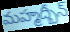
మహ్మద్బీన్